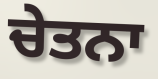
ਚੇਤਨਾ